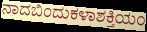
ನಾದಬಿಂದುಕಳಾಶಕ್ತಿಯಂ